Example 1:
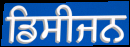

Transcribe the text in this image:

ਡਿਸੀਜਨ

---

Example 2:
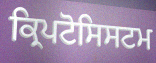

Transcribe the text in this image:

ਕ੍ਰਿਪਟੋਸਿਸਟਮ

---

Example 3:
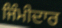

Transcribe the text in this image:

ਜਿੰਮੀਦਾਰ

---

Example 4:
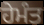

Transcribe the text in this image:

ਹੇਮੰਤ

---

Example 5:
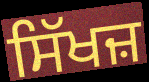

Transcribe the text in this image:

ਸਿੱਖਜ਼